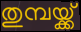
തുമ്പയ്ക്ക്